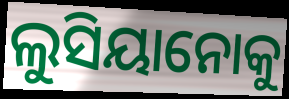
ଲୁସିୟାନୋକୁ